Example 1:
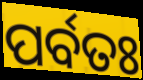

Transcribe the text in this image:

ପର୍ବତଃ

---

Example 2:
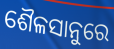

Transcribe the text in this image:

ଶୈଳସାନୁରେ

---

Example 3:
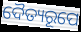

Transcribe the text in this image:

ଦୈତ୍ୟରୂପେ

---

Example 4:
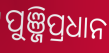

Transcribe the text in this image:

ପୁଞ୍ଜିପ୍ରଧାନ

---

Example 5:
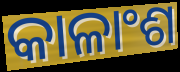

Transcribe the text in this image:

କାଳାଂଶ